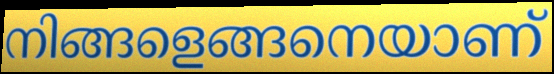
നിങ്ങളെങ്ങനെയാണ്